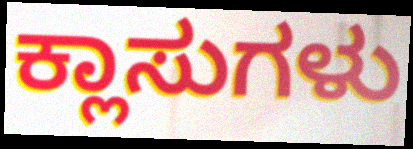
ಕ್ಲಾಸುಗಳು